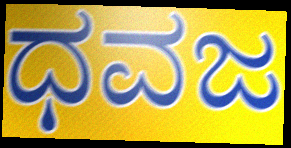
ಧವಜ